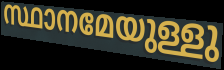
സ്ഥാനമേയുള്ളു